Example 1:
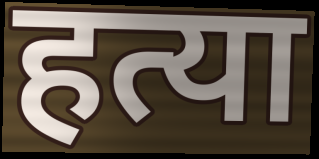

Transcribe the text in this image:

हत्या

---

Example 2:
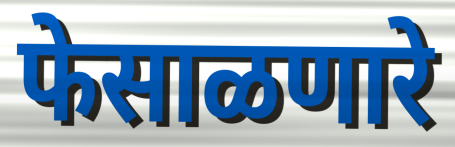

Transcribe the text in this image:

फेसाळणारे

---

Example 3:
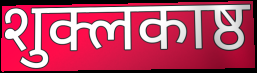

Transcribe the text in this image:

शुक्लकाष्ठ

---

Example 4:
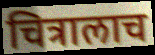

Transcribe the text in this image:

चित्रालाच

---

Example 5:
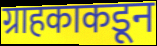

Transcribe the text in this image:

ग्राहकाकडून